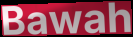
Bawah